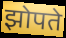
झोपते